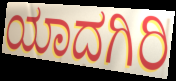
ಯಾದಗಿರಿ